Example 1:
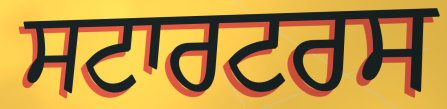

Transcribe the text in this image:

ਸਟਾਰਟਰਸ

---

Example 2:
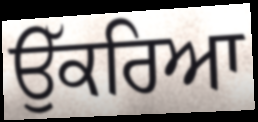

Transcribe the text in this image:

ਉੱਕਰਿਆ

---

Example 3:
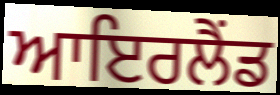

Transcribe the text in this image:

ਆਇਰਲੈੰਡ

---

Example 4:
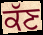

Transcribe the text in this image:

ਕੱਣ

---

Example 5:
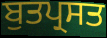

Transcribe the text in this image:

ਬੁਤਪ੍ਰਸਤ